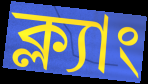
ক্ল্যাং